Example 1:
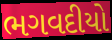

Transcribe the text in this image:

ભગવદીયો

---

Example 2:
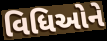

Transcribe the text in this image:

વિધિઓને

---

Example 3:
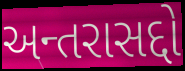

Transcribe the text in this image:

અન્તરાસદ્દો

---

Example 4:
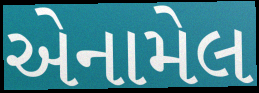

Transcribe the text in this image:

એનામેલ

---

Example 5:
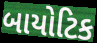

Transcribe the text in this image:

બાયોટિક